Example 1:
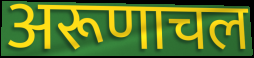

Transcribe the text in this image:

अरूणाचल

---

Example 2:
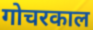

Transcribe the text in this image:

गोचरकाल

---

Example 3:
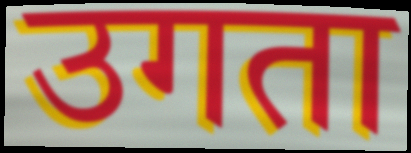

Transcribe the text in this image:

उगता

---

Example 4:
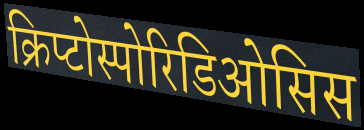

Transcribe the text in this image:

क्रिप्टोस्पोरिडिओसिस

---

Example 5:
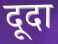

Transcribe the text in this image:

दूदा